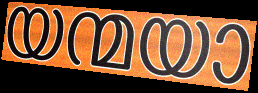
യന്മയാ